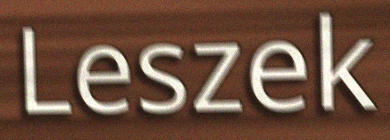
Leszek